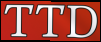
TTD